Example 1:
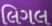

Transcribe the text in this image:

લિગલ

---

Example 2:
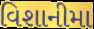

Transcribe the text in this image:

વિશાનીમા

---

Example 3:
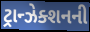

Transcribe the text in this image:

ટ્રાન્ઝેક્શનની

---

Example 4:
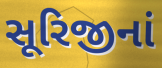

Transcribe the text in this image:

સૂરિજીનાં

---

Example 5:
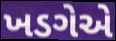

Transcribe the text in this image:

ખડગેએ